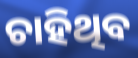
ଚାହିଥିବ